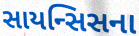
સાયન્સિસના